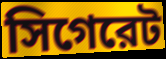
সিগেরেট